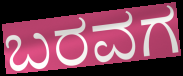
ಬರವಗ